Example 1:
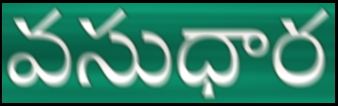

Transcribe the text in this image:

వసుధార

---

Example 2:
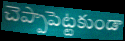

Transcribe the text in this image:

చెప్పాపెట్టకుండా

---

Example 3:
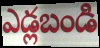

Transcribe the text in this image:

ఎడ్లబండి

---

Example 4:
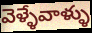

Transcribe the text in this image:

వెళ్ళేవాళ్ళు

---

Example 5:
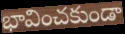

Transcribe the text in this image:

భావించకుండా